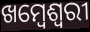
ଖମ୍ବେଶ୍ଵରୀ